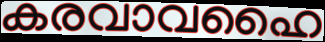
കരവാവഹൈ